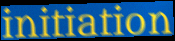
initiation